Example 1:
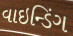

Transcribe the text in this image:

વાઇન્ડિંગ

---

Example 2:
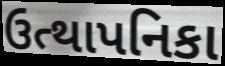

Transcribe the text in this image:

ઉત્થાપનિકા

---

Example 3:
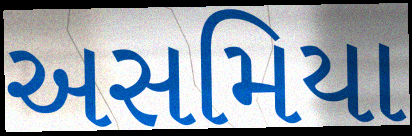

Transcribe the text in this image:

અસમિયા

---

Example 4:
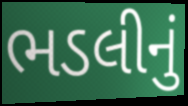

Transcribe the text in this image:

ભડલીનું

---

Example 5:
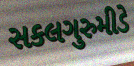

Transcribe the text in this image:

સકલગુરુમીડે